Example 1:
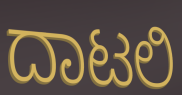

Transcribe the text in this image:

ದಾಟಲಿ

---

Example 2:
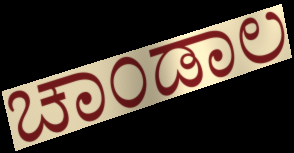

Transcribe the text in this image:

ಚಾಂಡಾಲ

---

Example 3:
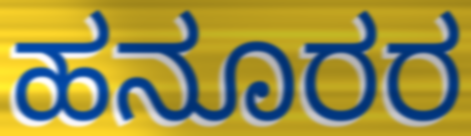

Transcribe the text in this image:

ಹನೂರರ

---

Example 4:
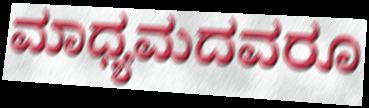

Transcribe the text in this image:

ಮಾಧ್ಯಮದವರೂ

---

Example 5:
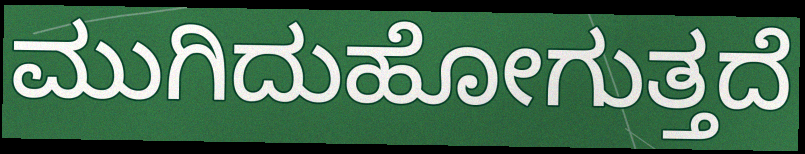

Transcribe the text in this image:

ಮುಗಿದುಹೋಗುತ್ತದೆ